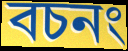
বচনং